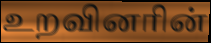
உறவினரின்